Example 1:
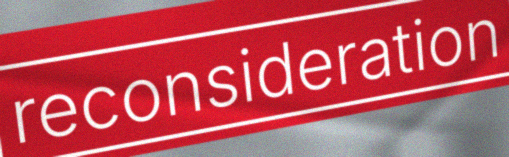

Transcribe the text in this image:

reconsideration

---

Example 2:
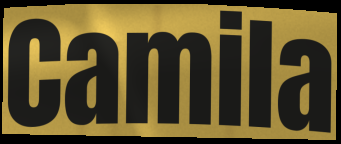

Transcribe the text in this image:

Camila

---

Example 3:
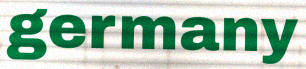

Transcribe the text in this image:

germany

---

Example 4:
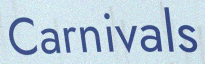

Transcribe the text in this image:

Carnivals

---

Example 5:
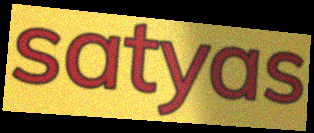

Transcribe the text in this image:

satyas